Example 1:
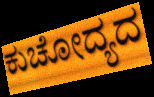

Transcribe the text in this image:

ಕುಚೋದ್ಯದ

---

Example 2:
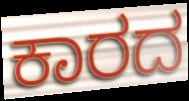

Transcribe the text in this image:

ಕಾರದ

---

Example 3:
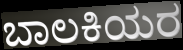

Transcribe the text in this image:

ಬಾಲಕಿಯರ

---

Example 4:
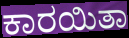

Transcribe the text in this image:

ಕಾರಯಿತಾ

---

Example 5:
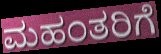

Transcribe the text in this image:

ಮಹಂತರಿಗೆ